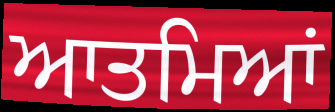
ਆਤਮਿਆਂ